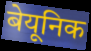
बेयूनिक